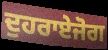
ਦੁਹਰਾਏਜੋਗ